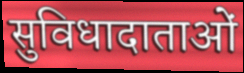
सुविधादाताओं